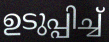
ഉടുപ്പിച്ച്